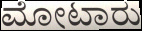
ಮೋಟಾರು